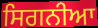
ਸਿਗਨੀਆ